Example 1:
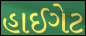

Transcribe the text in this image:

હાઈગેટ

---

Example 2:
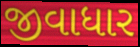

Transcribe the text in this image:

જીવાધાર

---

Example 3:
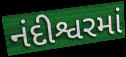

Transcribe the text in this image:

નંદીશ્વરમાં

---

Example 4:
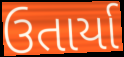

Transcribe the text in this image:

ઉતાર્યા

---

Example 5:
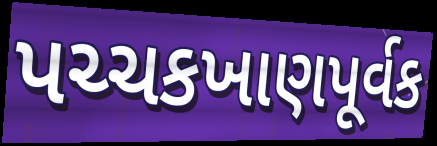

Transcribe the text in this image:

પચ્ચકખાણપૂર્વક